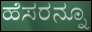
ಹೆಸರನ್ನೂ